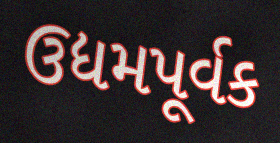
ઉદ્યમપૂર્વક